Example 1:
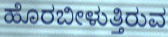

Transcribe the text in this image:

ಹೊರಬೀಳುತ್ತಿರುವ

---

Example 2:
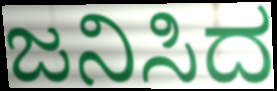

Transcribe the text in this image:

ಜನಿಸಿದ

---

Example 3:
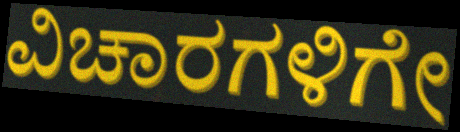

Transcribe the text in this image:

ವಿಚಾರಗಳಿಗೇ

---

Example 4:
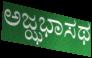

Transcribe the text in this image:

ಅಜ್ಝಭಾಸಥ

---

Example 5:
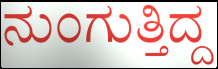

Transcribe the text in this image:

ನುಂಗುತ್ತಿದ್ದ